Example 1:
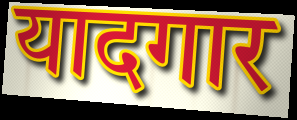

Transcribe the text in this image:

यादगार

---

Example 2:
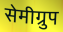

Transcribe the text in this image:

सेमीग्रुप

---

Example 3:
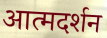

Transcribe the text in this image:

आत्मदर्शन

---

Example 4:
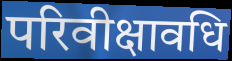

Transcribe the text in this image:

परिवीक्षावधि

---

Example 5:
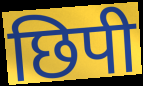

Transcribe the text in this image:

छिपी